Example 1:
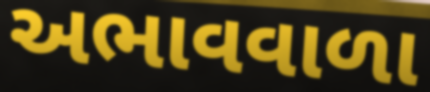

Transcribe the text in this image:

અભાવવાળા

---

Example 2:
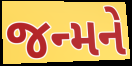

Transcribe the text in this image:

જન્મને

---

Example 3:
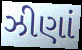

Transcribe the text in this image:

ઝીણાં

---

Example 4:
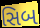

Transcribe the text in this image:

સિબ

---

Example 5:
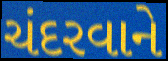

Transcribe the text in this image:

ચંદરવાને